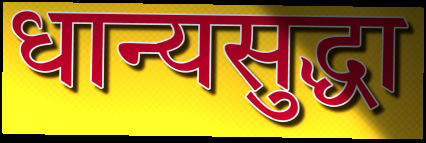
धान्यसुद्धा